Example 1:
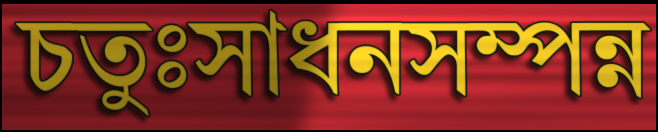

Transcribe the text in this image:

চতুঃসাধনসম্পন্ন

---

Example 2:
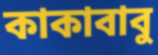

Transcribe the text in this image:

কাকাবাবু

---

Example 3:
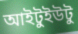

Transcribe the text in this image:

আইটুইউটু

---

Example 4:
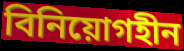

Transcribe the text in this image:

বিনিয়োগহীন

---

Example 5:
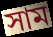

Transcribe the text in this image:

সাম